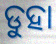
ଡୁହା